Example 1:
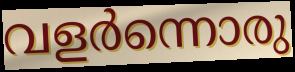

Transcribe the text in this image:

വളർന്നൊരു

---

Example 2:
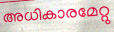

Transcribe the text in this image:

അധികാരമേറ്റു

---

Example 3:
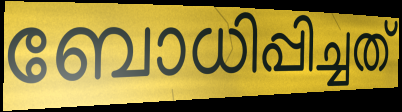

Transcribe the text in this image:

ബോധിപ്പിച്ചത്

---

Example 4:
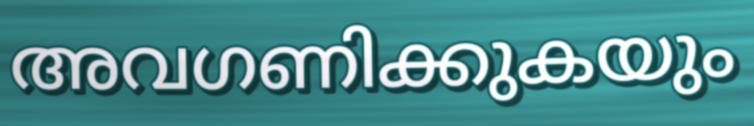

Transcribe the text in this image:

അവഗണിക്കുകയും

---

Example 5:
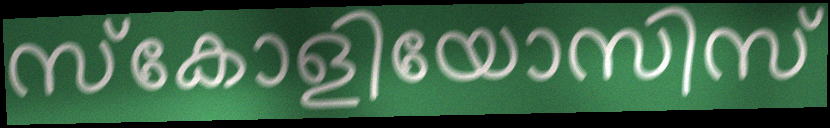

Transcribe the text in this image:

സ്കോളിയോസിസ്